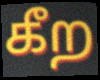
கீற